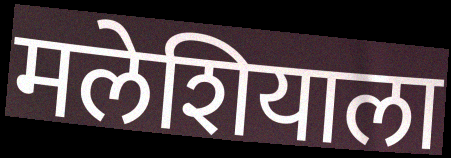
मलेशियाला